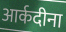
आर्कदीना